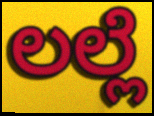
ಲಲ್ಲೆ